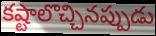
కష్టాలొచ్చినప్పుడు